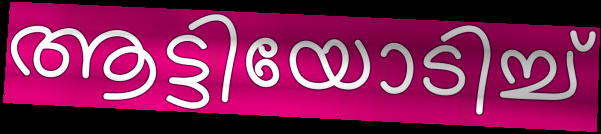
ആട്ടിയോടിച്ച്